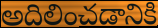
అదిలించడానికి